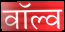
वॉल्व